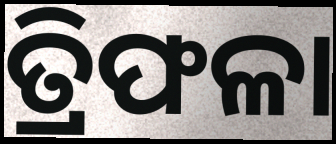
ତ୍ରିଫଳା